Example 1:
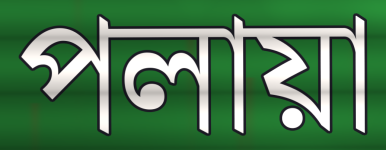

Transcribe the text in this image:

পলায়া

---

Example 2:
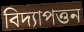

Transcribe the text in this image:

বিদ্যাপত্তন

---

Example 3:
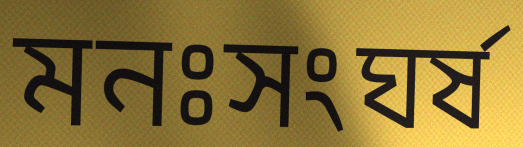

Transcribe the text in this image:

মনঃসংঘর্ষ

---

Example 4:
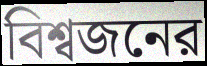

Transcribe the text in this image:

বিশ্বজনের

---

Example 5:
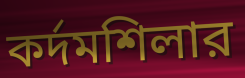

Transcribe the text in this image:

কর্দমশিলার